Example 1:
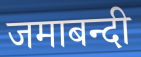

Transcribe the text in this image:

जमाबन्दी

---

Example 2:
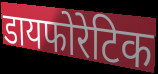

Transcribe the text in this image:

डायफोरेटिक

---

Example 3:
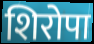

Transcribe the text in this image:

शिरोपा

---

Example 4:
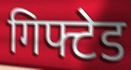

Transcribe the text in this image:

गिफ्टेड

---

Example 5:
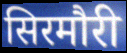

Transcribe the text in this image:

सिरमौरी